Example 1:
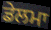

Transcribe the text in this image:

ਡੇਲਮਾ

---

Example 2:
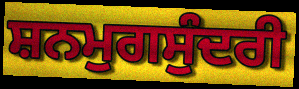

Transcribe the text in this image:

ਸ਼ਨਮੁਗਸੁੰਦਰੀ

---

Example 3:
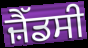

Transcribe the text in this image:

ਜ਼ੈੱਡਸੀ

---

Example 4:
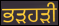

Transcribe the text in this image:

ਭੜਹੜੀ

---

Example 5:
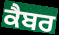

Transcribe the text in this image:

ਕੈਬਰ